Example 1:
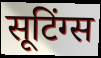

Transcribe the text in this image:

सूटिंग्स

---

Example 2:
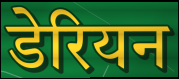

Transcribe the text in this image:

डेरियन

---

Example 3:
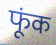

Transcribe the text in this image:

फूंक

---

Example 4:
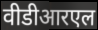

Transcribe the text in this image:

वीडीआरएल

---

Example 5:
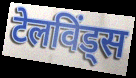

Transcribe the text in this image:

टेलविंड्स